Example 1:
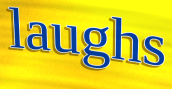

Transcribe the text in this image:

laughs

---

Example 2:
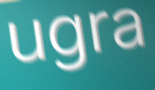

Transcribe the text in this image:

ugra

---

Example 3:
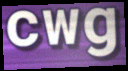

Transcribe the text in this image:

cwg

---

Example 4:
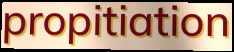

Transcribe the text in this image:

propitiation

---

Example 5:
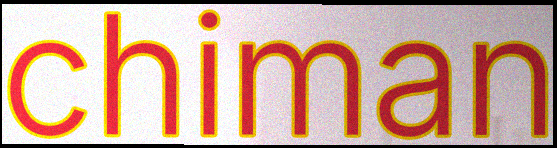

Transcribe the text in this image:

chiman